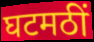
घटमठीं